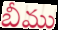
బీము